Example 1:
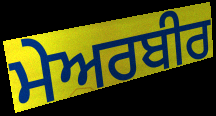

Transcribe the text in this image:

ਮੇਅਰਬੀਰ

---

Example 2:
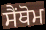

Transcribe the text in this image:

ਸੈਂਥੋਮ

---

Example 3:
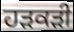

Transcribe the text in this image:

ਹੜਕੜੀ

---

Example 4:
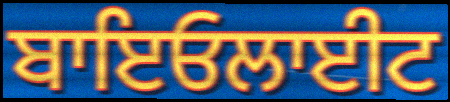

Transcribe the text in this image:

ਬਾਇਓਲਾਈਟ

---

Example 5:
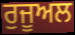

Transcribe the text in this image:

ਰੁਜੂਅਲ